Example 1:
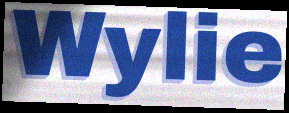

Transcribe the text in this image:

Wylie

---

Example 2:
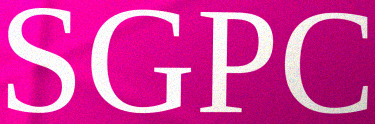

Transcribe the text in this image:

SGPC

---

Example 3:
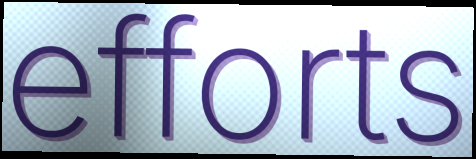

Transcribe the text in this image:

efforts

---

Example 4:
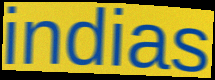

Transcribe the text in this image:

indias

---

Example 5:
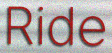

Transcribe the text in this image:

Ride